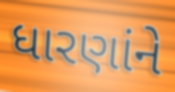
ધારણાંને